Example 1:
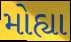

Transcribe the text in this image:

મોહ્યા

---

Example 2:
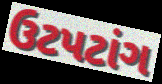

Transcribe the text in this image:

ઉટપટાંગ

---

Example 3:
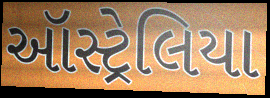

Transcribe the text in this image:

ઑસ્ટ્રેલિયા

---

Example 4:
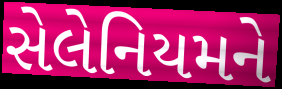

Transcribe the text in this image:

સેલેનિયમને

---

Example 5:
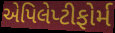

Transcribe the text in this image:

એપિલેપ્ટીફોર્મ